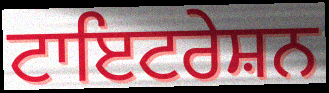
ਟਾਇਟਰੇਸ਼ਨ